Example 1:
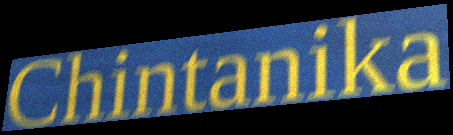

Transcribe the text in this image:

Chintanika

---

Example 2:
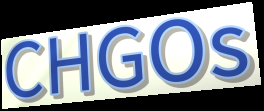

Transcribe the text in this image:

CHGOs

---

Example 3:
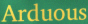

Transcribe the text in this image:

Arduous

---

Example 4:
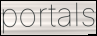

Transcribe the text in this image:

portals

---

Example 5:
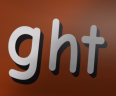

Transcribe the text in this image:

ght